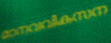
മാനവവികസന